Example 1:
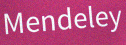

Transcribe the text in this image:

Mendeley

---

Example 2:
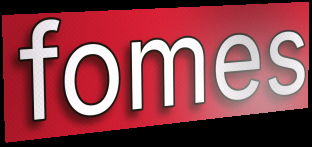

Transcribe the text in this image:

fomes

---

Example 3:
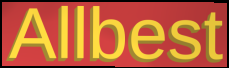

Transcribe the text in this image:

Allbest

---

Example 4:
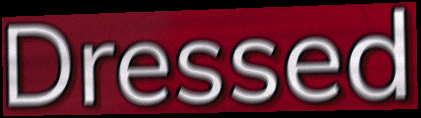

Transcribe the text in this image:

Dressed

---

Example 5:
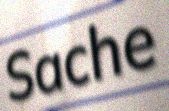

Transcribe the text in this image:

Sache